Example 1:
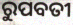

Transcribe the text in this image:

ରୁପବତୀ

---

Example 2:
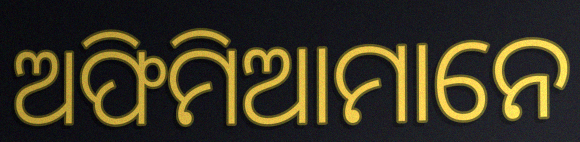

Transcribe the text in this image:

ଅଫିମିଆମାନେ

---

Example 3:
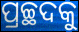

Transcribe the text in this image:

ପ୍ରଚ୍ଛଦକୁ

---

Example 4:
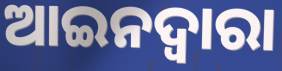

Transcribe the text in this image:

ଆଇନଦ୍ଵାରା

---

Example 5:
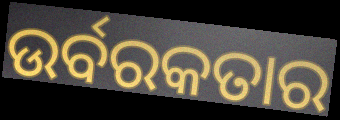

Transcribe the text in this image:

ଉର୍ବରକତାର